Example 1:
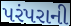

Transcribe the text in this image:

પરંપરાની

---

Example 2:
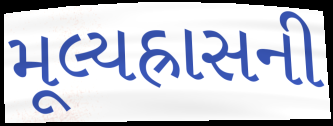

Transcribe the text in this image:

મૂલ્યહ્રાસની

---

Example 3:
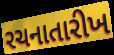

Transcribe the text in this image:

રચનાતારીખ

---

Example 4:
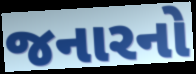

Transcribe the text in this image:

જનારનો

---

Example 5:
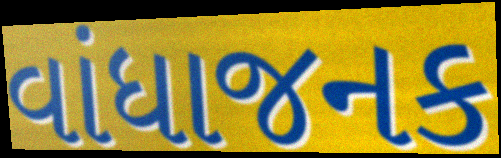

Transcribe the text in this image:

વાંધાજનક